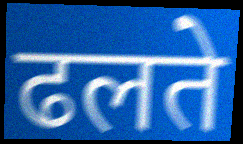
ढलते